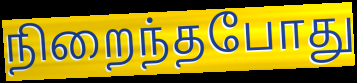
நிறைந்தபோது